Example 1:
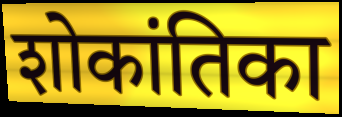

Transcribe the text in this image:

शोकांतिका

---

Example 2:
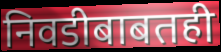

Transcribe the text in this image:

निवडीबाबतही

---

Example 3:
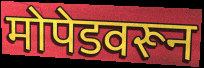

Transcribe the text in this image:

मोपेडवरून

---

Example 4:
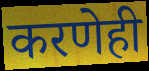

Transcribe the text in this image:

करणेही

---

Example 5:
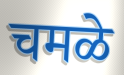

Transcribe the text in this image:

चमळे